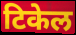
टिकेल